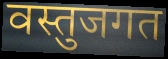
वस्तुजगत